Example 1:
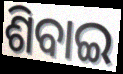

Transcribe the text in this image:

ଶିବାଇ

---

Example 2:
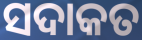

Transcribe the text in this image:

ସଦାକତ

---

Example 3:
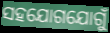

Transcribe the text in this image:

ସହଯୋଗଯୋଗୁଁ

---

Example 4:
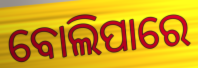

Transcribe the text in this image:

ବୋଲିପାରେ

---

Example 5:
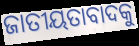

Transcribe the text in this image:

ଜାତୀୟତାବାଦକୁ